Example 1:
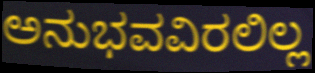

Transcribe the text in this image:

ಅನುಭವವಿರಲಿಲ್ಲ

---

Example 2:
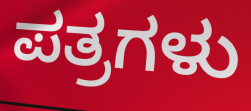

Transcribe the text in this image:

ಪತ್ರಗಳು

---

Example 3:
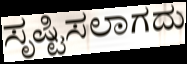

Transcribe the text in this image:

ಸೃಷ್ಟಿಸಲಾಗದು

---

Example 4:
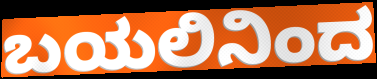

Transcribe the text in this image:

ಬಯಲಿನಿಂದ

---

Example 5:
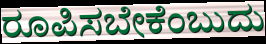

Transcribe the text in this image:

ರೂಪಿಸಬೇಕೆಂಬುದು